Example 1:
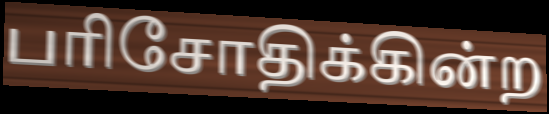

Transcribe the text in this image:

பரிசோதிக்கின்ற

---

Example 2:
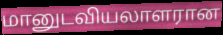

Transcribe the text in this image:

மானுடவியலாளரான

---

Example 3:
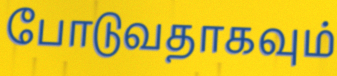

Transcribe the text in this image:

போடுவதாகவும்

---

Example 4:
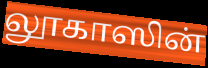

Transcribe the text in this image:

லூகாஸின்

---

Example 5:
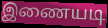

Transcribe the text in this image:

இணையடி